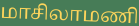
மாசிலாமணி